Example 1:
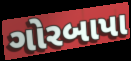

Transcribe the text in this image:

ગોરબાપા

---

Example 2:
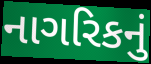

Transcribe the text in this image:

નાગરિકનું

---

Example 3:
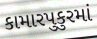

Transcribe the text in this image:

કામારપુકુરમાં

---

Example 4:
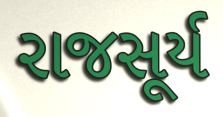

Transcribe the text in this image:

રાજસૂર્ય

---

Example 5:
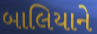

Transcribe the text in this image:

બાલિયાને